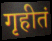
गृहीतं